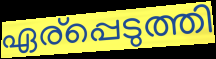
ഏര്പ്പെടുത്തി